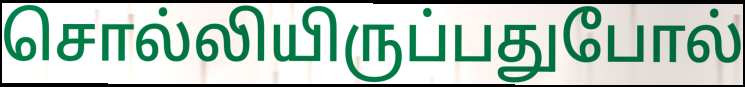
சொல்லியிருப்பதுபோல்